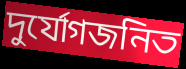
দুর্যোগজনিত